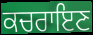
ਕਚਰਾਇਣ